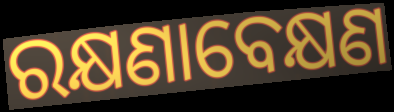
ରକ୍ଷଣାବେକ୍ଷଣ